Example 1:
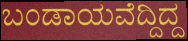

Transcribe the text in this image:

ಬಂಡಾಯವೆದ್ದಿದ್ದ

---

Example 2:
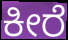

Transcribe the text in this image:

ಕೀರೆ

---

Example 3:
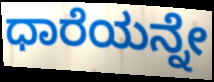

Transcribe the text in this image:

ಧಾರೆಯನ್ನೇ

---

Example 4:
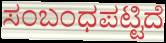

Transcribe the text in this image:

ಸಂಬಂಧಪಟ್ಟಿದೆ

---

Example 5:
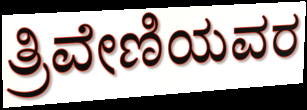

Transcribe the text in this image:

ತ್ರಿವೇಣಿಯವರ